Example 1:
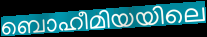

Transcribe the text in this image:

ബൊഹീമിയയിലെ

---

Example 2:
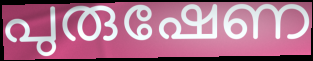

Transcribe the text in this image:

പുരുഷേണ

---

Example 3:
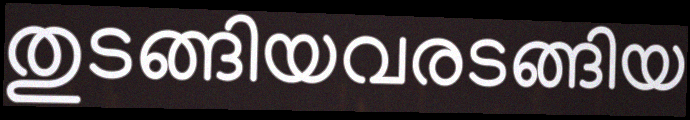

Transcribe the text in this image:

തുടങ്ങിയവരടങ്ങിയ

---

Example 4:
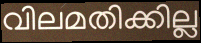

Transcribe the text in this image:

വിലമതിക്കില്ല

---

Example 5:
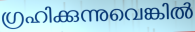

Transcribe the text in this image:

ഗ്രഹിക്കുന്നുവെങ്കിൽ